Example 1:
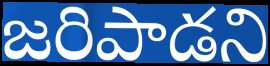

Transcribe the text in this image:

జరిపాడని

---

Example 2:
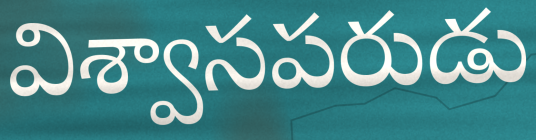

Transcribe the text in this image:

విశ్వాసపరుడు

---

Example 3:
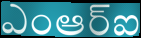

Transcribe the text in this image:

ఎంఆర్ఐ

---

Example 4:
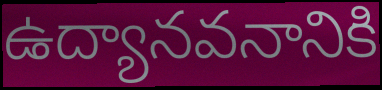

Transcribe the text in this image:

ఉద్యానవనానికి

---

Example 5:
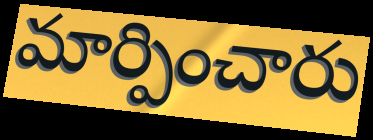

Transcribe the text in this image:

మార్పించారు